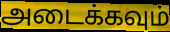
அடைக்கவும்